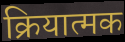
क्रियात्मक